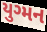
યુગ્મન